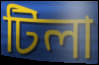
টিলা